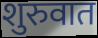
शुरुवात